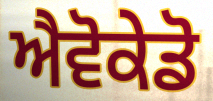
ਐਵੋਕੇਡੋ